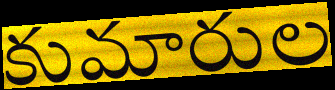
కుమారుల